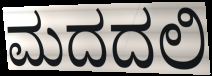
ಮದದಲಿ